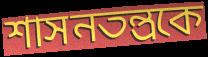
শাসনতন্ত্রকে